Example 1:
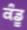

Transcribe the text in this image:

ਕੰਡੂ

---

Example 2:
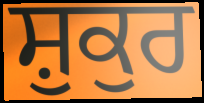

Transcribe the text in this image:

ਸ਼ੁਕੁਰ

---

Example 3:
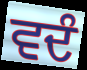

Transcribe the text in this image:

ਵਦੰ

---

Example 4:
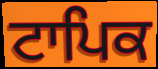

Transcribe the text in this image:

ਟਾਪਿਕ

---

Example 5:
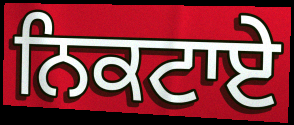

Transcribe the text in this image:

ਨਿਕਟਾਏ